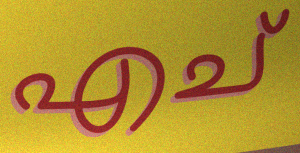
എച്